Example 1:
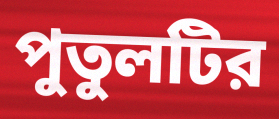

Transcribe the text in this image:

পুতুলটির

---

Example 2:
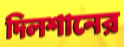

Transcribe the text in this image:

দিলশানের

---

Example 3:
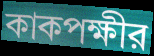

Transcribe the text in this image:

কাকপক্ষীর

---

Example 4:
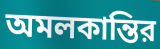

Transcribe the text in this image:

অমলকান্তির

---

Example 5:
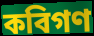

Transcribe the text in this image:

কবিগণ